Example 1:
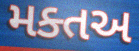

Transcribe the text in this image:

મક્તઅ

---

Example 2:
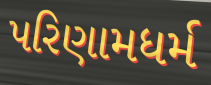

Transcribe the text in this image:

પરિણામધર્મ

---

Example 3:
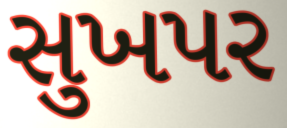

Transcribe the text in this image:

સુખપર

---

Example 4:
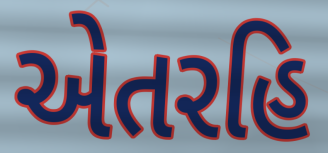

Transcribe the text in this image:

એતરહિ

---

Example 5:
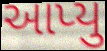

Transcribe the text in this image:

આપ્યુ